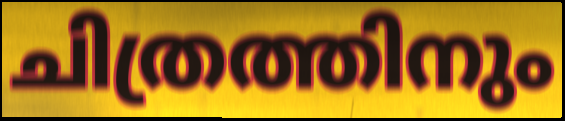
ചിത്രത്തിനും